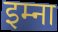
इम्ना